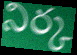
నిర్క